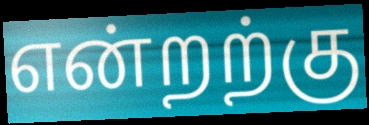
என்றற்கு